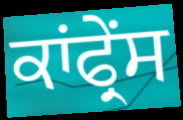
ਕਾਂਫ੍ਰੇਂਸ